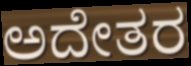
ಅದೇತರ